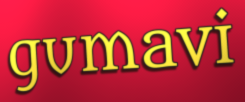
gumavi